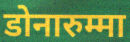
डोनारुम्मा